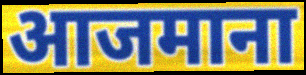
आजमाना